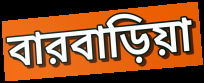
বারবাড়িয়া